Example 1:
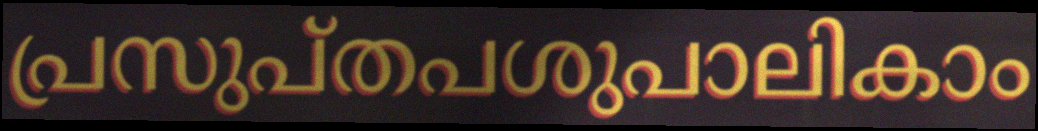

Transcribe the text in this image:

പ്രസുപ്തപശുപാലികാം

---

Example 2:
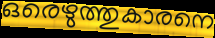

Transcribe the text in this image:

ഒരെഴുത്തുകാരനെ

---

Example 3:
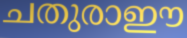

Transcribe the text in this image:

ചതുരാഈ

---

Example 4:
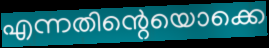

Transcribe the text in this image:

എന്നതിന്റെയൊക്കെ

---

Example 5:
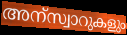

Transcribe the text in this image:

അന്സ്വാറുകളും